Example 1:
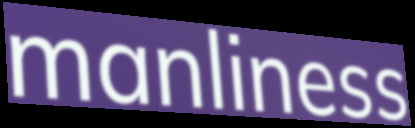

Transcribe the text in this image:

manliness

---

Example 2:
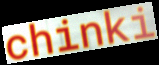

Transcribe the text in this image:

chinki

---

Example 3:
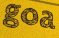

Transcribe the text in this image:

goa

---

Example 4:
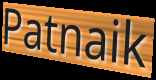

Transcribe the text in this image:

Patnaik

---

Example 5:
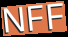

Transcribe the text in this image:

NFF